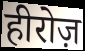
हीरोज़